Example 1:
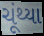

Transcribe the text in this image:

ચૂંથ્યા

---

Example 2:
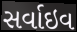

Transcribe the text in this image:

સર્વાઇવ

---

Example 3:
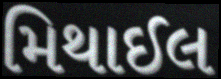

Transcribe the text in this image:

મિથાઈલ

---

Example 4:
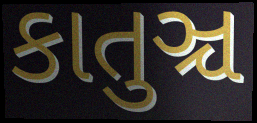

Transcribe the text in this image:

કાતુઞ્ચ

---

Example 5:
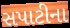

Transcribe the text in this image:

સપાટીના